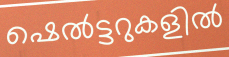
ഷെൽട്ടറുകളിൽ